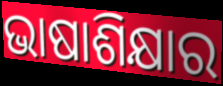
ଭାଷାଶିକ୍ଷାର